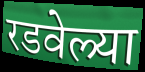
रडवेल्या